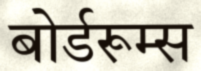
बोर्डरूम्स